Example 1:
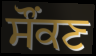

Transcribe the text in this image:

ਸੌਂਕਣ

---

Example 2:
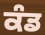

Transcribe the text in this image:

ਕੰਡ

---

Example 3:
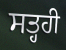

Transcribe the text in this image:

ਸਤ੍ਹਹੀ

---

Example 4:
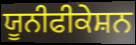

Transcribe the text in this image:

ਯੂਨੀਫੀਕੇਸ਼ਨ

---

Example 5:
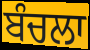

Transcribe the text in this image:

ਬੰਚਲਾ